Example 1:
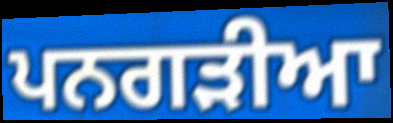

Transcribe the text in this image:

ਪਨਗੜੀਆ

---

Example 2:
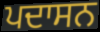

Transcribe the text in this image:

ਪਦਾਸਨ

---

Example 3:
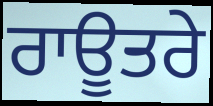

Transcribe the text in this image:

ਰਾਊਤਰੇ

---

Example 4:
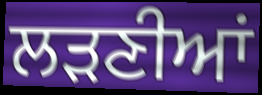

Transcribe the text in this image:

ਲੜਣੀਆਂ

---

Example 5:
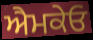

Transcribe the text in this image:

ਐਮਕੇਓ